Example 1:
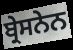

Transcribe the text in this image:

ਬ੍ਰੇਸਨੇਨ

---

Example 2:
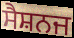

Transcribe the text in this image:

ਸੈਸ਼ਨਜ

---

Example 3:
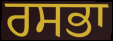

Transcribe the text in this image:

ਰਸਭਾ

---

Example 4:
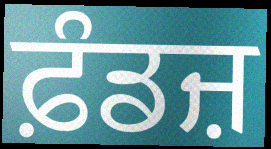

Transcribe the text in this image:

ਫ਼ੰਡਜ਼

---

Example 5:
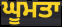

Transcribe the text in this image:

ਘੂਮਤਾ